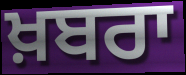
ਖ਼ਬਰਾ